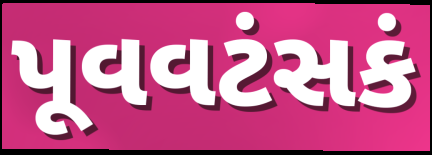
પૂવવટંસકં